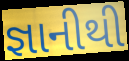
જ્ઞાનીથી